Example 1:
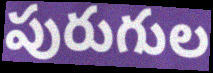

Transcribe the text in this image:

పురుగుల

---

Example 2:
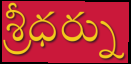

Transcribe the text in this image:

శ్రీధర్ను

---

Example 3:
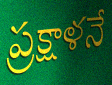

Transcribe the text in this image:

ప్రక్షాళనే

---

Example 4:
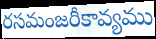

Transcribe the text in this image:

రసమంజరీకావ్యము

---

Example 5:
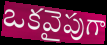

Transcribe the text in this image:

ఒకవైపుగా